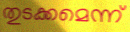
തുടക്കമെന്ന്